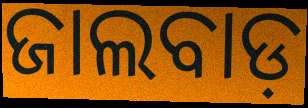
ଜାଲବାଡ଼